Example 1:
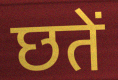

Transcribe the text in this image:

छतें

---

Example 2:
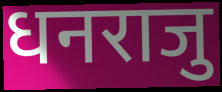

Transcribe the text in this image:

धनराजु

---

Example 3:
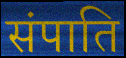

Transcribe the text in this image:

संपाति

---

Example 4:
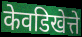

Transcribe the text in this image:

केवडिखेत्ते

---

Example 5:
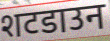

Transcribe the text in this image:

शटडाउन